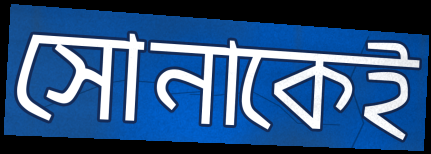
সোনাকেই